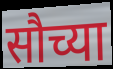
सौच्या